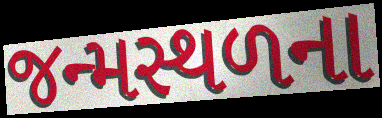
જન્મસ્થળના